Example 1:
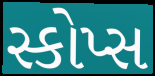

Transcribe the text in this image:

સ્કોપ્સ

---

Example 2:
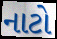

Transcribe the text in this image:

નાટો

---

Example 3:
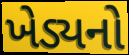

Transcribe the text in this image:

ખેડ્યનો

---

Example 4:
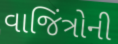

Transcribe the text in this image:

વાજિંત્રોની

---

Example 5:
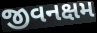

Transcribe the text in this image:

જીવનક્ષમ